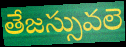
తేజస్సువలె